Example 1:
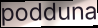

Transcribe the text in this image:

podduna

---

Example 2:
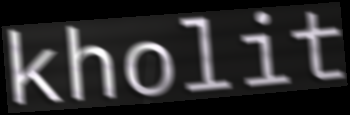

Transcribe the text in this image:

kholit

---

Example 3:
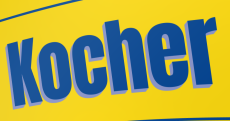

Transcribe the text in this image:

Kocher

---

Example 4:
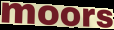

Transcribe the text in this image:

moors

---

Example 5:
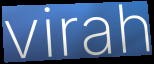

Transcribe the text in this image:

virah